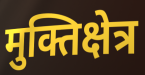
मुक्तिक्षेत्र